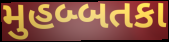
મુહબ્બતકા